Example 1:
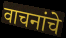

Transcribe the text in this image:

वाचनांचे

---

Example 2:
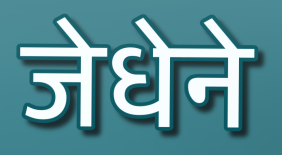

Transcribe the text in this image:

जेधेने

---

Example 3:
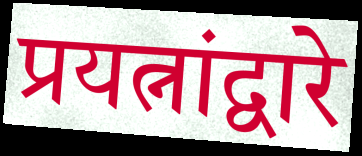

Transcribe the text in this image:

प्रयत्नांद्वारे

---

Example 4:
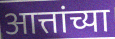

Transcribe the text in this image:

आत्तांच्या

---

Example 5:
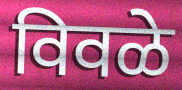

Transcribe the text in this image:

विवळे